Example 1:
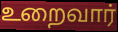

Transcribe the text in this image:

உறைவார்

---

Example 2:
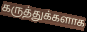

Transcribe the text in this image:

கருத்துக்களாக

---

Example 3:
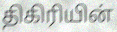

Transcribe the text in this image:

திகிரியின்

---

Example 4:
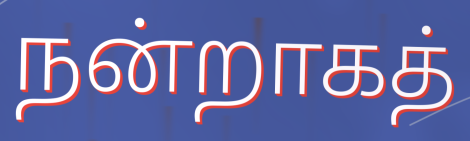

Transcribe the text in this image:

நன்றாகத்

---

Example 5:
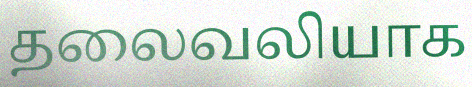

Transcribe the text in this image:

தலைவலியாக